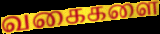
வகைகளை